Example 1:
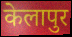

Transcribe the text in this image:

केलापुर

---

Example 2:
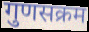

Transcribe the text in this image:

गुणसक्रम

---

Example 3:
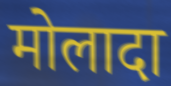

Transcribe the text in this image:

मोलादा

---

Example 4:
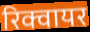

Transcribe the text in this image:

रिक्वायर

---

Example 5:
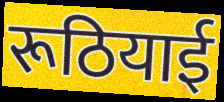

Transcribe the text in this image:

रूठियाई